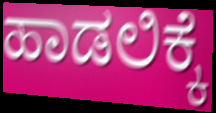
ಹಾಡಲಿಕ್ಕೆ